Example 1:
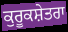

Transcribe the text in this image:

ਕੁਰੂਕਸ਼ੇਤਰਾ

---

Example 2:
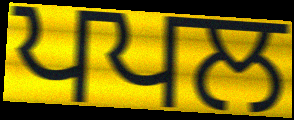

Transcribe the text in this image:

ਪਪਲ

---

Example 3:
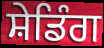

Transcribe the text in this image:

ਸ਼ੇਡਿੰਗ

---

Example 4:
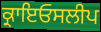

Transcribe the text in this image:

ਕ੍ਰਾਇਓਸਲੀਪ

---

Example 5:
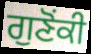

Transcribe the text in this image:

ਗੁਣੋਂਕੀ